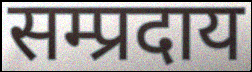
सम्प्रदाय